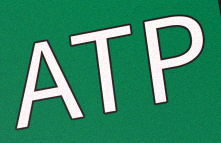
ATP